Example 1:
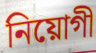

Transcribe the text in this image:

নিয়োগী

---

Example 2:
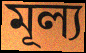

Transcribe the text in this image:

মূল্য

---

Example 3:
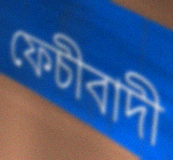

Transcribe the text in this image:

ফেচীবাদী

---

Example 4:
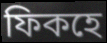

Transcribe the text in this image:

ফিকহে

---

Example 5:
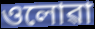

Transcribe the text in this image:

ওলোৱা